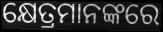
କ୍ଷେତ୍ରମାନଙ୍କରେ